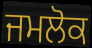
ਜਮਲੋਕ